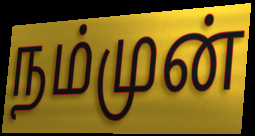
நம்முன்